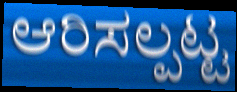
ಆರಿಸಲ್ಪಟ್ಟ